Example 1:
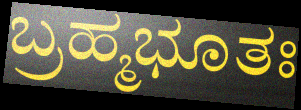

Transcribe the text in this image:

ಬ್ರಹ್ಮಭೂತಃ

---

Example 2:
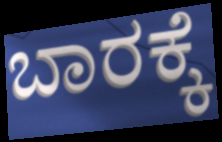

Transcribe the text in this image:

ಬಾರಕ್ಕೆ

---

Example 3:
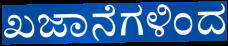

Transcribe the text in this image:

ಖಜಾನೆಗಳಿಂದ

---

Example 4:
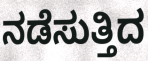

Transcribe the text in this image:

ನಡೆಸುತ್ತಿದ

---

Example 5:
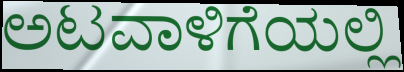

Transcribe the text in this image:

ಅಟವಾಳಿಗೆಯಲ್ಲಿ